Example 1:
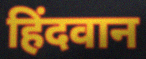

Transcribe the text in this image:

हिंदवान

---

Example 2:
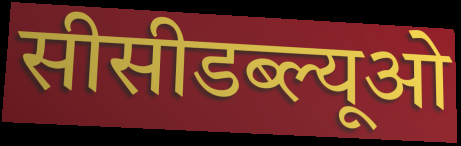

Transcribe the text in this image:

सीसीडब्ल्यूओ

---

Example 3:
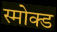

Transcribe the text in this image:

स्मोक्ड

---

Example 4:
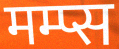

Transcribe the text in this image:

मम्प्स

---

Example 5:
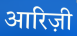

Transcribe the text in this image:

आरिज़ी